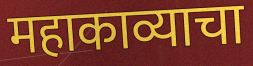
महाकाव्याचा